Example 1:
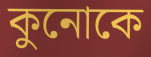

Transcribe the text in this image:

কুনোকে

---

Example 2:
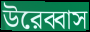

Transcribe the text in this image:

উরেব্বাস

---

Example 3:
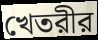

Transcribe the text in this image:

খেতরীর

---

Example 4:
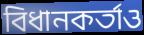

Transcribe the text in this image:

বিধানকর্তাও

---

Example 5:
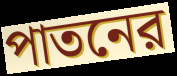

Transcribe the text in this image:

পাতনের